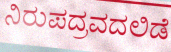
ನಿರುಪದ್ರವದಲಿಡೆ